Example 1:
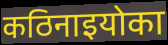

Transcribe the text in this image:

कठिनाइयोका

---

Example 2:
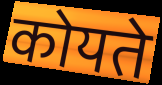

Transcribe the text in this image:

कोयते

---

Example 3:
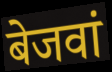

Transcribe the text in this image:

बेजवां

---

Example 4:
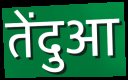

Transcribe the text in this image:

तेंदुआ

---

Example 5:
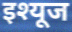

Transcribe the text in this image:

इश्यूज